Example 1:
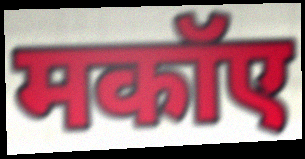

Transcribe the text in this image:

मकॉए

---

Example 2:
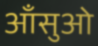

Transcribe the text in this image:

आँसुओ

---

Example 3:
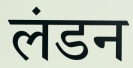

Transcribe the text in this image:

लंडन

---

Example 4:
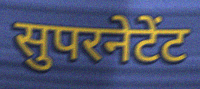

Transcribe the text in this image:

सुपरनेटेंट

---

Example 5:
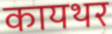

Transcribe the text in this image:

कायथर